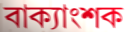
বাক্যাংশক